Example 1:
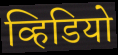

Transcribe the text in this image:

व्हिडियो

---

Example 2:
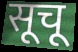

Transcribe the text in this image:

सूचू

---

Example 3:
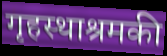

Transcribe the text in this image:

गृहस्थाश्रमकी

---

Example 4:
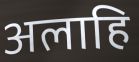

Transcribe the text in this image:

अलाहि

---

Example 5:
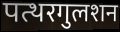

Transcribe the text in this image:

पत्थरगुलशन